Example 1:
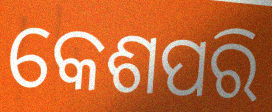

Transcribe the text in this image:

କେଶପରି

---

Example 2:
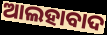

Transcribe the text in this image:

ଆଲହାବାଦ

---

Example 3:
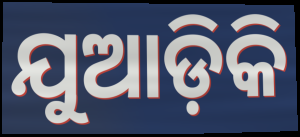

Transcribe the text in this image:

ଯୁଆଡ଼ିକି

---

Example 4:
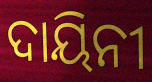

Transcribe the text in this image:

ଦାୟିନୀ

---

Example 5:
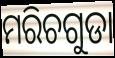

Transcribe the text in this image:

ମରିଚଗୁଡା